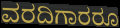
ವರದಿಗಾರರೂ